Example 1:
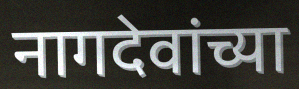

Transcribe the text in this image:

नागदेवांच्या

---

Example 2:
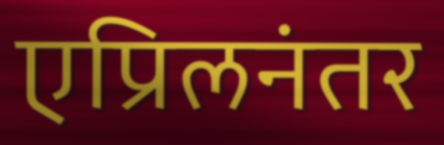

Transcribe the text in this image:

एप्रिलनंतर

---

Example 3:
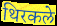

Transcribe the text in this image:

थिरकले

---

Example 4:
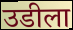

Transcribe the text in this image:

उडीला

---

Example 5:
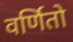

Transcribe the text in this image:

वर्णितो